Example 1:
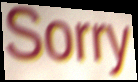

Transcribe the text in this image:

Sorry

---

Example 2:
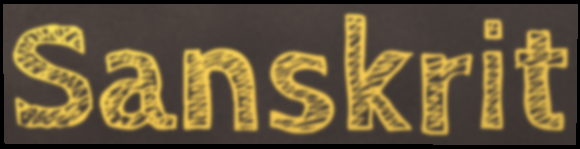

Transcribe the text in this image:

Sanskrit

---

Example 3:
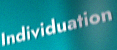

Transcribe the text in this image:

Individuation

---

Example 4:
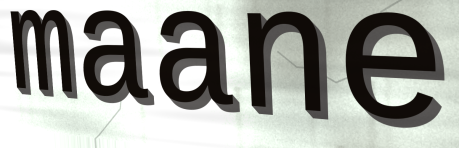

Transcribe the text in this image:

maane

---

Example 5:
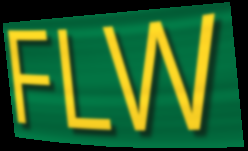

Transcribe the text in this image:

FLW